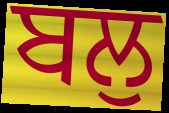
ਬਲੁ